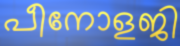
പീനോളജി